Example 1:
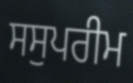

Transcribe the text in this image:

ਸਸੁਪਰੀਮ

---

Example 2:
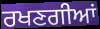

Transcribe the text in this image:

ਰਖਣਗੀਆਂ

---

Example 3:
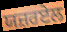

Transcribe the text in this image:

ਯਜ਼ਰਏਲ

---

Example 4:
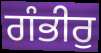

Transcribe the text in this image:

ਗੰਭੀਰੁ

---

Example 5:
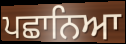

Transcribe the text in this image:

ਪਛਾਨਿਆ